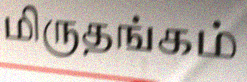
மிருதங்கம்